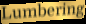
Lumbering